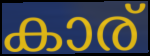
കാര്